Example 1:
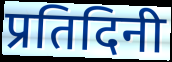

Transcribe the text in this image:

प्रतिदिनी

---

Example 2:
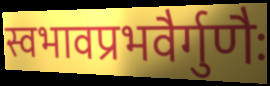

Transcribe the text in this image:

स्वभावप्रभवैर्गुणैः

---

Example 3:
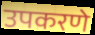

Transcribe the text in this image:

उपकरणे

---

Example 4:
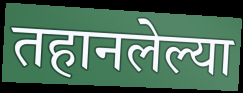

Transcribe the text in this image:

तहानलेल्या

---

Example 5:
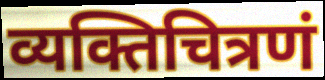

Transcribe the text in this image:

व्यक्तिचित्रणं